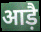
आड़ै